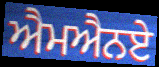
ਐਮਐਨਏ